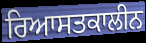
ਰਿਆਸਤਕਾਲੀਨ